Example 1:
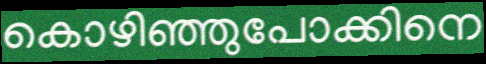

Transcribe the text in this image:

കൊഴിഞ്ഞുപോക്കിനെ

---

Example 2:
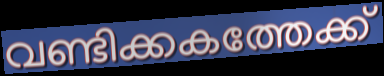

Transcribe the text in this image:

വണ്ടിക്കകത്തേക്ക്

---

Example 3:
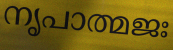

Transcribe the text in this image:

നൃപാത്മജഃ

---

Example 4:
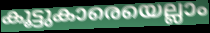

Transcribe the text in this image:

കൂട്ടുകാരെയെല്ലാം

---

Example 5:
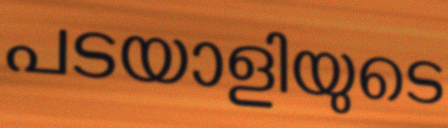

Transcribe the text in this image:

പടയാളിയുടെ